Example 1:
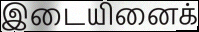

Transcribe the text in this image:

இடையினைக்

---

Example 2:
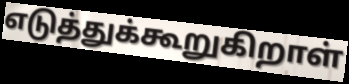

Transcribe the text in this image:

எடுத்துக்கூறுகிறாள்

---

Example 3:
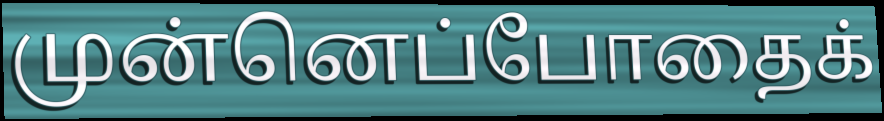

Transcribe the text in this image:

முன்னெப்போதைக்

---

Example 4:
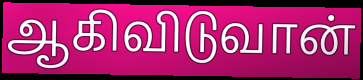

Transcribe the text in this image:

ஆகிவிடுவான்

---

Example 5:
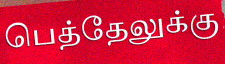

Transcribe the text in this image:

பெத்தேலுக்கு